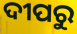
ଦୀପରୁ